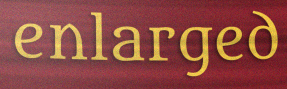
enlarged